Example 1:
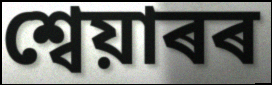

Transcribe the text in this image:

শ্বেয়াৰৰ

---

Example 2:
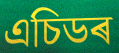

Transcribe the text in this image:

এচিডৰ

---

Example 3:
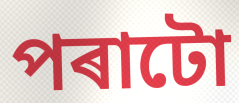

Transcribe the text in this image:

পৰাটো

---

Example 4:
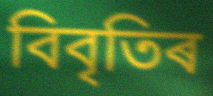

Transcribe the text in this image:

বিবৃতিৰ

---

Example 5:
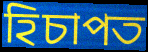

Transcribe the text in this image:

হিচাপত